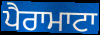
ਪੈਰਾਮਾਟਾ